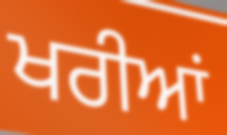
ਖਰੀਆਂ